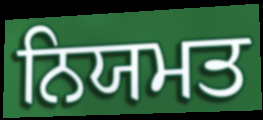
ਨਿਯਮਤ